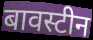
बावस्टीन